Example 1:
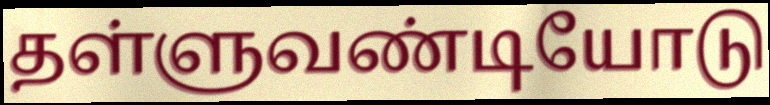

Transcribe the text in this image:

தள்ளுவண்டியோடு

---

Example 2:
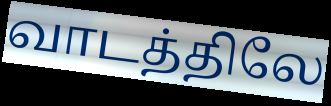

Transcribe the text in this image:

வாடத்திலே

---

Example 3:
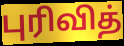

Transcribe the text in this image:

புரிவித்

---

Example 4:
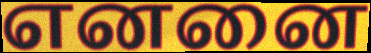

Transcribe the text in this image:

எனனை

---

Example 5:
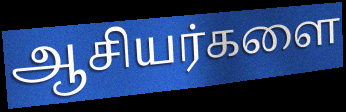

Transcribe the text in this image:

ஆசியர்களை